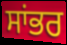
ਸਾਂਭਰ